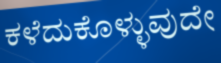
ಕಳೆದುಕೊಳ್ಳುವುದೇ